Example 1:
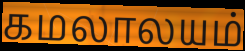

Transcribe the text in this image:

கமலாலயம்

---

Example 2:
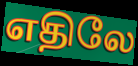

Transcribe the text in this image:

எதிலே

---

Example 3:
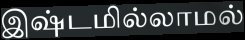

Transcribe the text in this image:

இஷ்டமில்லாமல்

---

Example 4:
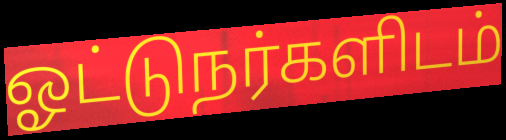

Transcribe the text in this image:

ஓட்டுநர்களிடம்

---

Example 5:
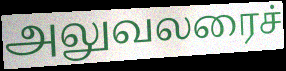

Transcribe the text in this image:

அலுவலரைச்